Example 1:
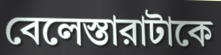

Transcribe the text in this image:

বেলেস্তারাটাকে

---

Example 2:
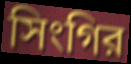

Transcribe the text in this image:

সিংগির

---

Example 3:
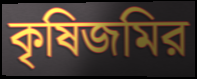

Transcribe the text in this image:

কৃষিজমির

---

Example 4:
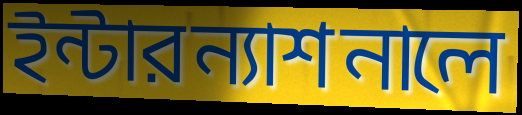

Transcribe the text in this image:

ইন্টারন্যাশনালে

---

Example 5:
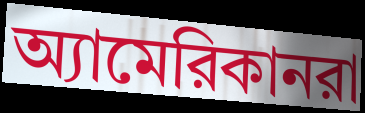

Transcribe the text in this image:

অ্যামেরিকানরা